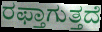
ರಫ್ತಾಗುತ್ತದೆ